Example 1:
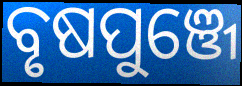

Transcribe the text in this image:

ବୃଷପୁଞ୍ଜେ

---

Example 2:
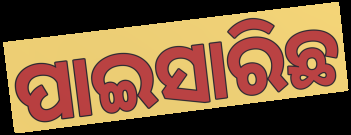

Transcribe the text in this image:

ପାଇସାରିଛ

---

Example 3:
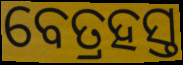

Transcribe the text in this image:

ବେତ୍ରହସ୍ତ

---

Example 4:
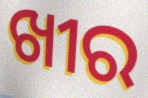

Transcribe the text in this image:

ଖୀର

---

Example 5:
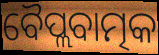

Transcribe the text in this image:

ବୈପ୍ଲବାତ୍ମକ